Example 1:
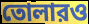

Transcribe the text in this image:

তোলারও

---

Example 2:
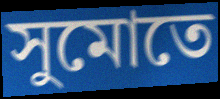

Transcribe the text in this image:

সুমোতে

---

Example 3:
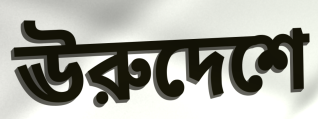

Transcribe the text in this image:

ঊরুদেশে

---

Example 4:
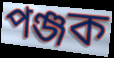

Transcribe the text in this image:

পঞ্জক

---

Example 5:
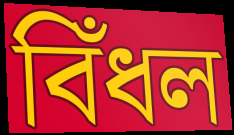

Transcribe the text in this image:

বিঁধল